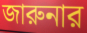
জারুনার